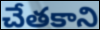
చేతకాని